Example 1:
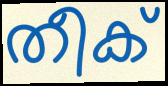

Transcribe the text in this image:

തീക്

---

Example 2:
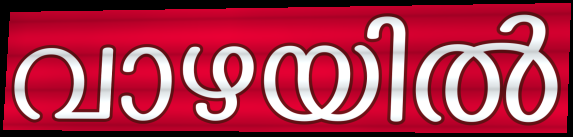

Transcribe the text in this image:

വാഴയിൽ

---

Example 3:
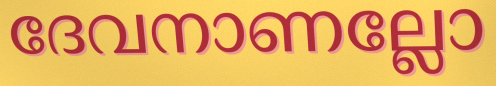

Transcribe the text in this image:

ദേവനാണല്ലോ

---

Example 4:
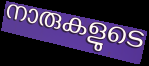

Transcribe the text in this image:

നാരുകളുടെ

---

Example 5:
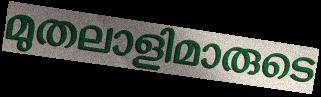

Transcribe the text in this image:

മുതലാളിമാരുടെ